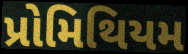
પ્રોમિથિયમ